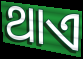
ଥାଏ